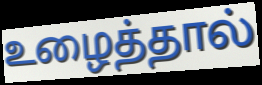
உழைத்தால்